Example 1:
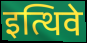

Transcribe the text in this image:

इत्थिवे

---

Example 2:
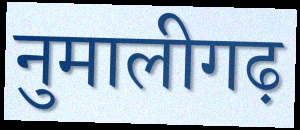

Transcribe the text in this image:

नुमालीगढ़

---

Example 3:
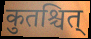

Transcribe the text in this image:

कुतश्चित्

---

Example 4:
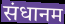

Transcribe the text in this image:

संधानम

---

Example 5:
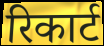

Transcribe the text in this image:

रिकार्ट